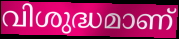
വിശുദ്ധമാണ്